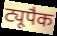
ट्यूपैक